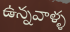
ఉన్నవాళ్ళ